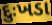
દુઃખડા